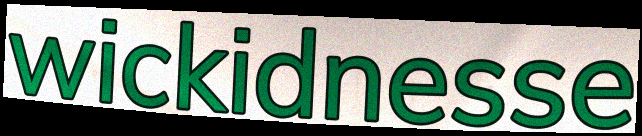
wickidnesse